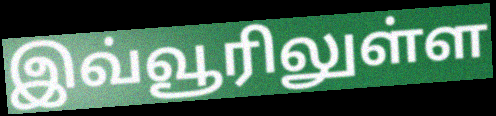
இவ்வூரிலுள்ள